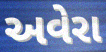
અવેરા